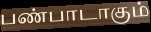
பண்பாடாகும்